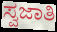
ಸ್ವಜಾತಿ